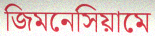
জিমনেসিয়ামে